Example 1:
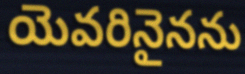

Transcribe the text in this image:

యెవరినైనను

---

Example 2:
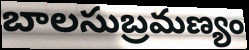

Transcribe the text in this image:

బాలసుబ్రమణ్యం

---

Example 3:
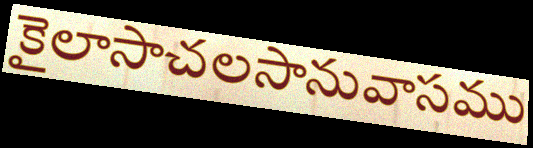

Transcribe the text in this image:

కైలాసాచలసానువాసము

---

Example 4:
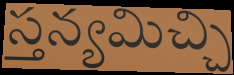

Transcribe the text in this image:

స్తన్యమిచ్చి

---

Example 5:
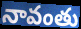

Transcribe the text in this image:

నావంతు